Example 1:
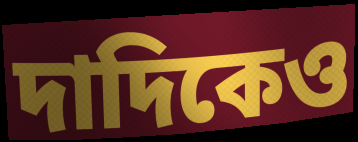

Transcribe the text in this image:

দাদিকেও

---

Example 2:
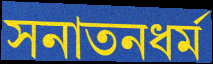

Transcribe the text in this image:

সনাতনধর্ম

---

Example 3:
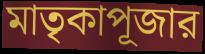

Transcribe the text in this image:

মাতৃকাপূজার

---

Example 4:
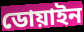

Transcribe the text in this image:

ডোয়াইন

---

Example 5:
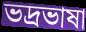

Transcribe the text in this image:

ভদ্রভাষা